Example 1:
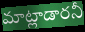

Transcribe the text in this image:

మాట్లాడారనీ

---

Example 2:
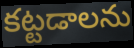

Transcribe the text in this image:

కట్టడాలను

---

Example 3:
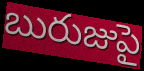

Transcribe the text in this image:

బురుజుపై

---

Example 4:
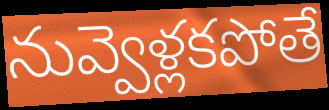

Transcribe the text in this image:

నువ్వెళ్లకపోతే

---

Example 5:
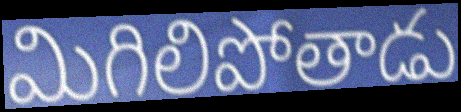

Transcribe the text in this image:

మిగిలిపోతాడు